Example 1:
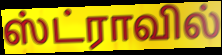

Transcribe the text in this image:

ஸ்ட்ராவில்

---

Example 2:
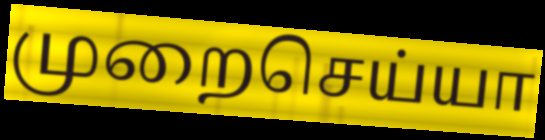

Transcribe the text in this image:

முறைசெய்யா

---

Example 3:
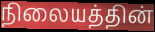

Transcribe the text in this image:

நிலையத்தின்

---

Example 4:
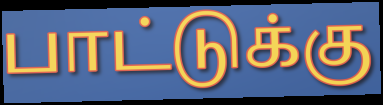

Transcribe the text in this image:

பாட்டுக்கு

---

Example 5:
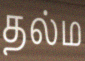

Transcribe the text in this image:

தல்ம